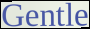
Gentle